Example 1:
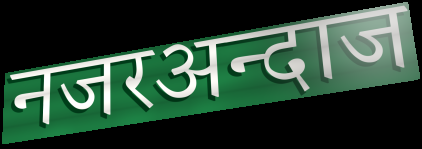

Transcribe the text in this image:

नजरअन्दाज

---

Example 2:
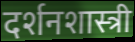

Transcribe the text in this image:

दर्शनशास्त्री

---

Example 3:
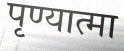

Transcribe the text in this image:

पृण्यात्मा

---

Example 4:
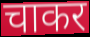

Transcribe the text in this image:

चाकर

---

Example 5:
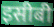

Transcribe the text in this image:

इसीबी